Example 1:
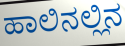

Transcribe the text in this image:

ಹಾಲಿನಲ್ಲಿನ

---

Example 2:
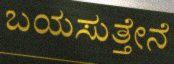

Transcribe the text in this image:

ಬಯಸುತ್ತೇನೆ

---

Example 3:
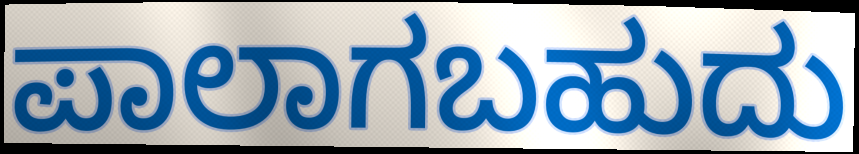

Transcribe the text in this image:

ಪಾಲಾಗಬಹುದು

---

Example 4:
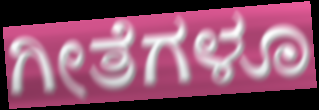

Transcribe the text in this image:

ಗೀತೆಗಳೂ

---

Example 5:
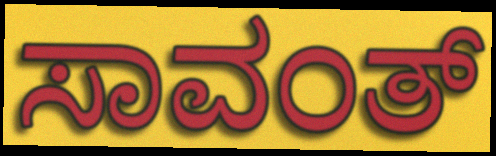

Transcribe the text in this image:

ಸಾವಂತ್